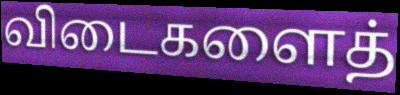
விடைகளைத்